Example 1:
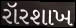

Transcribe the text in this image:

રૉરશાખ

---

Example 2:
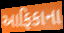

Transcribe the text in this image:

આફિકાના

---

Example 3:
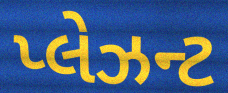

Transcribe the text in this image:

પ્લેઝન્ટ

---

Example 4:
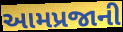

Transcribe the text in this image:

આમપ્રજાની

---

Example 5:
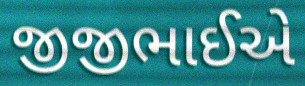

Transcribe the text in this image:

જીજીભાઈએ